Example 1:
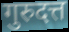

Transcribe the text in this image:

गुरुदत्त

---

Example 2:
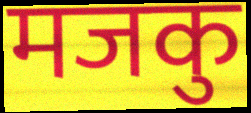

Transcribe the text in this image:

मजकु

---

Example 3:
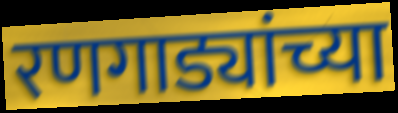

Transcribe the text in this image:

रणगाड्यांच्या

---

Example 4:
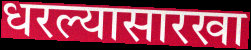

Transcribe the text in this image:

धरल्यासारखा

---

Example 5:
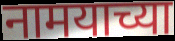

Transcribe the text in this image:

नामयाच्या